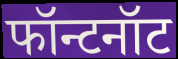
फॉन्टनॉट